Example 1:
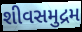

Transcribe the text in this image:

શીવસમુદ્રમ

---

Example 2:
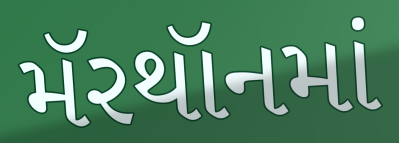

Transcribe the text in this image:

મૅરથૉનમાં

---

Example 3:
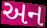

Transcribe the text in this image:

અન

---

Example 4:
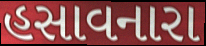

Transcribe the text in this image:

હસાવનારા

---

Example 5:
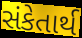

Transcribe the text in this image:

સંકેતાર્થ